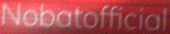
Nobatofficial